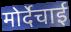
मोर्देचाई